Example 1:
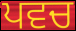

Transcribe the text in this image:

ਪਵਚ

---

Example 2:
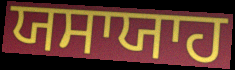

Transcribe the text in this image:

ਯਸਾਯਾਹ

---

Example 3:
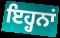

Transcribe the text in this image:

ਇਹ੍ਹਨਾਂ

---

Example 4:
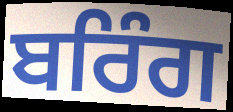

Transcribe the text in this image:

ਬਰਿੰਗ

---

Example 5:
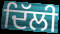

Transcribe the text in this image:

ਦਿੱਲੀ